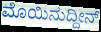
ಮೊಯಿನುದ್ದೀನ್